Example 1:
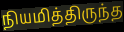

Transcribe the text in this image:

நியமித்திருந்த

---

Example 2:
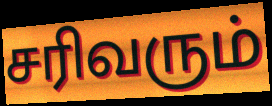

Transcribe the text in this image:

சரிவரும்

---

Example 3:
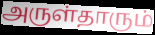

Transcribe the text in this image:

அருள்தாரும்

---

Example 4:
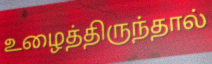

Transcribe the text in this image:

உழைத்திருந்தால்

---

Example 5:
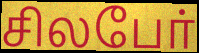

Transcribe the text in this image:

சிலபேர்